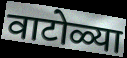
वाटोळ्या